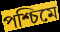
পশ্চিমে